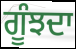
ਗੂੰਝਦਾ